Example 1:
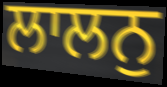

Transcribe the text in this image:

ਲਾਲਨੁ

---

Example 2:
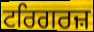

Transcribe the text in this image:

ਟਰਿਗਰਜ਼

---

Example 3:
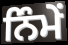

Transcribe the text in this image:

ਨਿੰਮੇਂ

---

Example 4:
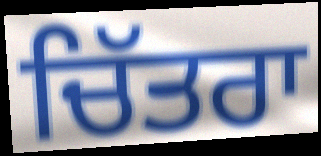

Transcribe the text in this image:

ਚਿੱਤਰਾ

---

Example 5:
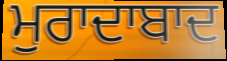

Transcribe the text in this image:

ਮੁਰਾਦਾਬਾਦ